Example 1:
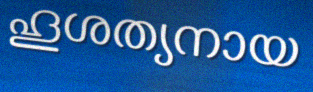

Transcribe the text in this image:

ഹൂശത്യനായ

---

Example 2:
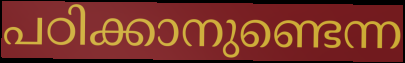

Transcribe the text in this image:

പഠിക്കാനുണ്ടെന്ന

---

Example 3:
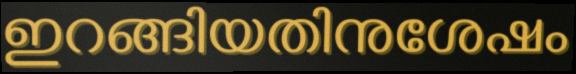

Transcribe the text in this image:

ഇറങ്ങിയതിനുശേഷം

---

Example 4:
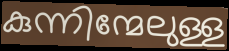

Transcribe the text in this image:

കുന്നിന്മേലുള്ള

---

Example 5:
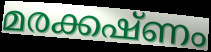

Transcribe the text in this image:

മരക്കഷ്ണം